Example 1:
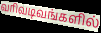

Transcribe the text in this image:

வரிவடிவங்களில்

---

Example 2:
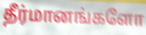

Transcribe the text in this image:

தீர்மானங்களோ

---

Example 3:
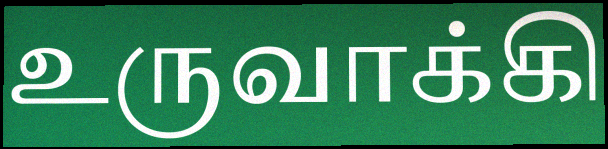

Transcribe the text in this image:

உருவாக்கி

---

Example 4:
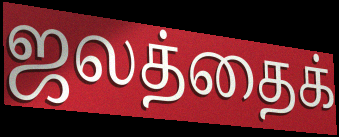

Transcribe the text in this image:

ஜலத்தைக்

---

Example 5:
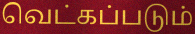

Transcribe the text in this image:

வெட்கப்படும்